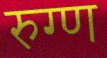
रुग्ण